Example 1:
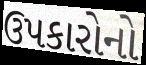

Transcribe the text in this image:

ઉપકારોનો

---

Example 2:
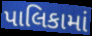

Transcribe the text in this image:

પાલિકામાં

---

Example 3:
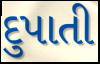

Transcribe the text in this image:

દુપાતી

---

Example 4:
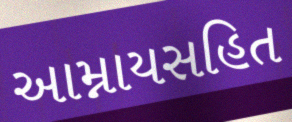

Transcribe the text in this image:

આમ્નાયસહિત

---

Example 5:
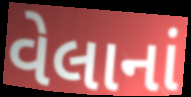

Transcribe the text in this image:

વેલાનાં